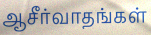
ஆசீர்வாதங்கள்